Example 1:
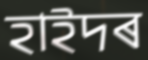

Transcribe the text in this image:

হাইদৰ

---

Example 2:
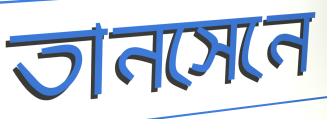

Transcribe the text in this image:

তানসেনে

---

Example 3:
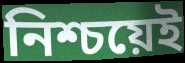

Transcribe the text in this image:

নিশ্চয়েই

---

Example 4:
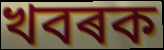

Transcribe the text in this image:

খবৰক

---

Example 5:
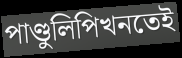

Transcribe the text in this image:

পাণ্ডুলিপিখনতেই